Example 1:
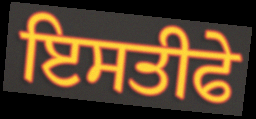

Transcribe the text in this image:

ਇਸਤੀਫੇ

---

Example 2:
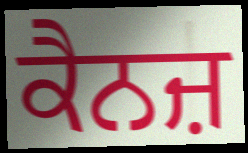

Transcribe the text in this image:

ਕੈਨਜ਼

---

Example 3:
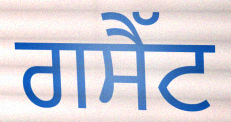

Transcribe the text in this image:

ਗਸੈੱਟ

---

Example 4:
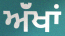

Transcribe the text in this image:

ਅੱਂਖਾਂ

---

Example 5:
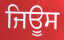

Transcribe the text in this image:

ਜਿਊਸ